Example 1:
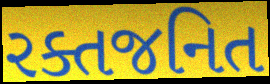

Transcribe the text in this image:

રક્તજનિત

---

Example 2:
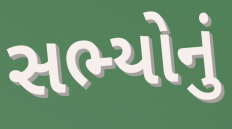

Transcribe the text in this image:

સભ્યોનું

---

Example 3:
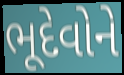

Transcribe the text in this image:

ભૂદેવોને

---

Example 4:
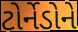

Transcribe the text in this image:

ટોર્નેડોને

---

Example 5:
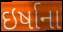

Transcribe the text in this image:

ઇર્ષાના